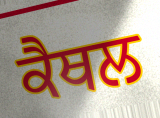
ਕੈਥਲ